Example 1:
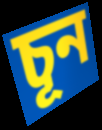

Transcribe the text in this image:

চূন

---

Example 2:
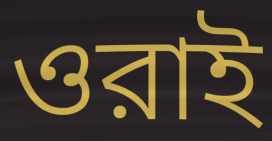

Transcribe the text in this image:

ওরাই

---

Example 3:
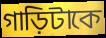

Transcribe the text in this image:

গাড়িটাকে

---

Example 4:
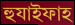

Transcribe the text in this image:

হুযাইফাহ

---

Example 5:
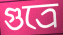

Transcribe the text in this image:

গুত্রে